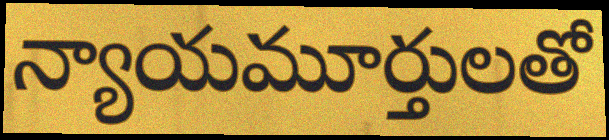
న్యాయమూర్తులతో